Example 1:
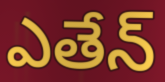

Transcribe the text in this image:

ఎతేన్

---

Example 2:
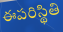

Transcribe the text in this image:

ఈపరిస్థితి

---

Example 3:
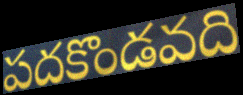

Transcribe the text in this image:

పదకొండవది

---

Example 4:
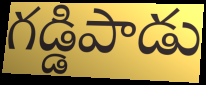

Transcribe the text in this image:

గడ్డిపాడు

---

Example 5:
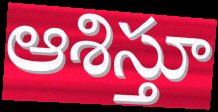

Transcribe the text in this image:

ఆశిస్తూ